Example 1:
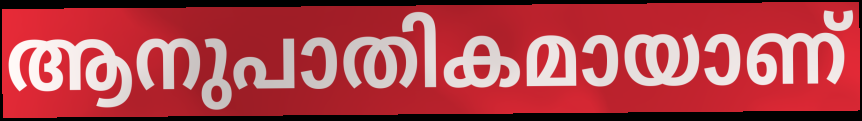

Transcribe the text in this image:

ആനുപാതികമായാണ്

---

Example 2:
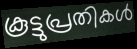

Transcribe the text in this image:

കൂട്ടുപ്രതികൾ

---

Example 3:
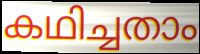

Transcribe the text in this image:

കഥിച്ചതാം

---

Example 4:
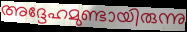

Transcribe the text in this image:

അദ്ദേഹമുണ്ടായിരുന്നു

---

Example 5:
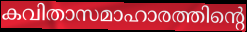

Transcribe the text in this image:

കവിതാസമാഹാരത്തിന്റെ